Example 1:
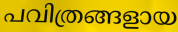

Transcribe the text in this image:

പവിത്രങ്ങളായ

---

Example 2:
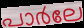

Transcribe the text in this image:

പാർലേ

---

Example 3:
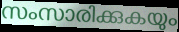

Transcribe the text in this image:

സംസാരിക്കുകയും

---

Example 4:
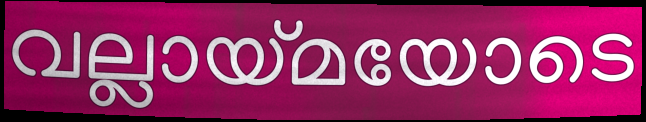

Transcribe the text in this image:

വല്ലായ്മയോടെ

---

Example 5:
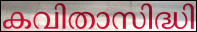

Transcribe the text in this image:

കവിതാസിദ്ധി